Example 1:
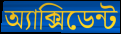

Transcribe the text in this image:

অ্যাক্সিডেন্ট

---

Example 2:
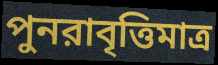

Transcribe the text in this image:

পুনরাবৃত্তিমাত্র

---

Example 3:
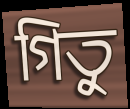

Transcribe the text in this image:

গিতু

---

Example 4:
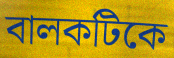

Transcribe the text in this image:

বালকটিকে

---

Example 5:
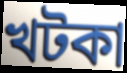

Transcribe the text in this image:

খটকা